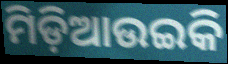
ମିଡ଼ିଆଉଇକି